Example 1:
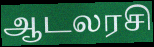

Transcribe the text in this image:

ஆடலரசி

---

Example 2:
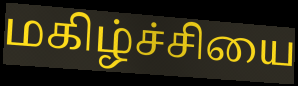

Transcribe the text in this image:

மகிழ்ச்சியை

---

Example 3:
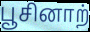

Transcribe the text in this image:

பூசினாற்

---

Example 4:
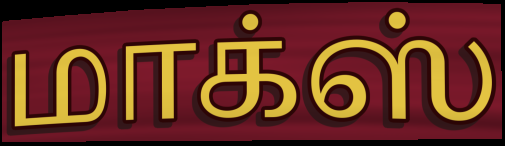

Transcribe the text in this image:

மாக்ஸ்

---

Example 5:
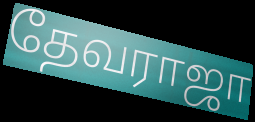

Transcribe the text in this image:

தேவராஜா